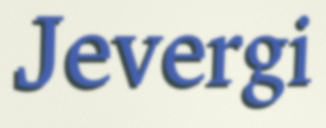
Jevergi